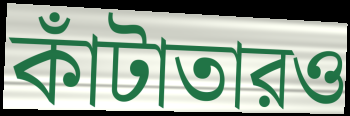
কাঁটাতারও